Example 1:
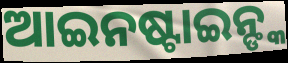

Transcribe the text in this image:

ଆଇନଷ୍ଟାଇନ୍ଙ୍କ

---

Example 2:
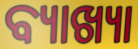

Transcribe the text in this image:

ବ୍ୟାଖ୍ୟା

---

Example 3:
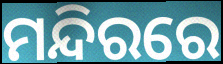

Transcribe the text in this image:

ମନ୍ଦିରରେ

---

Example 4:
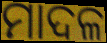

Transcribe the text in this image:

ମାଦଳ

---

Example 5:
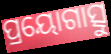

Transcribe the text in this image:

ପ୍ରୟୋଗାତ୍ସୁ